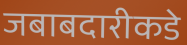
जबाबदारीकडे